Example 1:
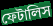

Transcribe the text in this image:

ফেটালিস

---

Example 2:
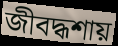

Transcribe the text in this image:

জীবদ্ধশায়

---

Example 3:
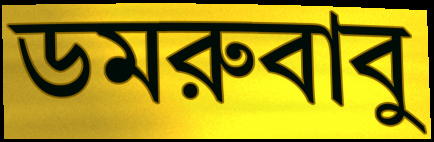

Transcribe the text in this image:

ডমরুবাবু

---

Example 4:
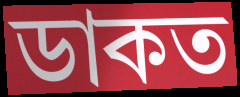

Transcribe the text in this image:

ডাকত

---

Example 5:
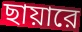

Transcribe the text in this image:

ছায়ারে